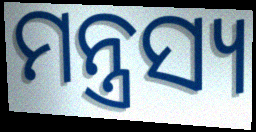
ମନ୍ତ୍ରସ୍ୟ